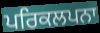
ਪਰਿਕਲਪਨਾ